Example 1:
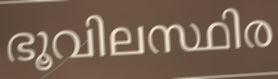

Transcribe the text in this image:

ഭൂവിലസ്ഥിര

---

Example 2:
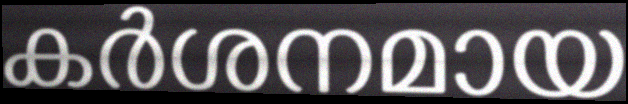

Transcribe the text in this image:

കർശനമായ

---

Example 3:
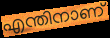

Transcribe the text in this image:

എന്തിനാണ്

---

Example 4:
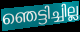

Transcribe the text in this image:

ഞെട്ടിച്ചില്ല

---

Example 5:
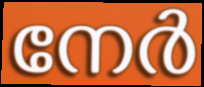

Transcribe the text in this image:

നേർ